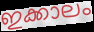
ഇക്കാലം